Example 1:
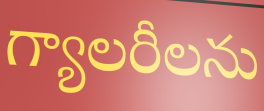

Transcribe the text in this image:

గ్యాలరీలను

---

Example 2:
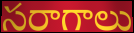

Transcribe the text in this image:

సరాగాలు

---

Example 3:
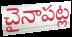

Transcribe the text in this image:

చైనాపట్ల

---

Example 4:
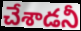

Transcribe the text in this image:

చేశాడనీ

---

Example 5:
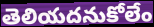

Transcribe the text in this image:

తెలియదనుకోలేం